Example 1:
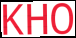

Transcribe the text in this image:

KHO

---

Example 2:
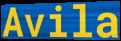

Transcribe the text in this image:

Avila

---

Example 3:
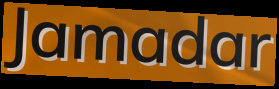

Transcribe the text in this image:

Jamadar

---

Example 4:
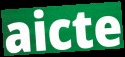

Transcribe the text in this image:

aicte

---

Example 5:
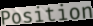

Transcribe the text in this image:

Position